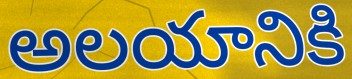
అలయానికి